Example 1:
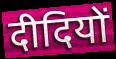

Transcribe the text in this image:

दीदियों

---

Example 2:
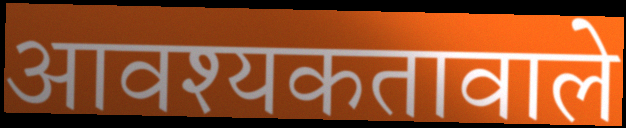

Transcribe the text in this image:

आवश्यकतावाले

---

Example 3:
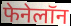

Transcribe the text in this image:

फेनेलॉन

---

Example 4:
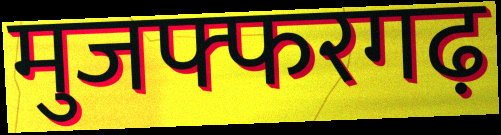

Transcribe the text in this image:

मुजफ्फरगढ़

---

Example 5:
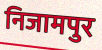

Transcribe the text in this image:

निजामपुर